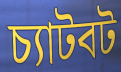
চ্যাটবট